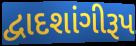
દ્વાદશાંગીરૂપ